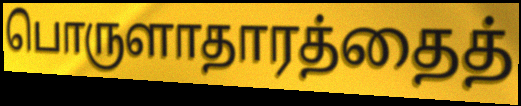
பொருளாதாரத்தைத்